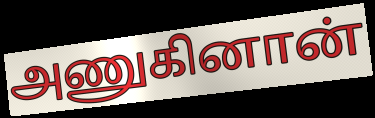
அணுகினான்